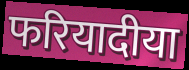
फरियादीया